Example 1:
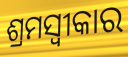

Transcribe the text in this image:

ଶ୍ରମସ୍ୱୀକାର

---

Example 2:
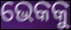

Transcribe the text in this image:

ଭେକକୁ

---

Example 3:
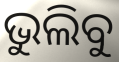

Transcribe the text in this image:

ଭୁଲିବୁ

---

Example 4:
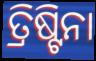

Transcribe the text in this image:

ତ୍ରିଷ୍ଟିନା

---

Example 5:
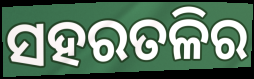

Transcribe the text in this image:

ସହରତଳିର